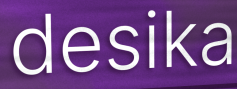
desika